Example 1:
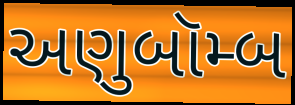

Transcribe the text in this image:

અણુબૉમ્બ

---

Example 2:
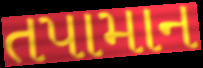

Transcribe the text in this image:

તપામાન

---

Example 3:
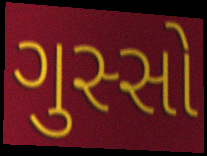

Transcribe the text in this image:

ગુસ્સો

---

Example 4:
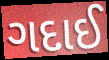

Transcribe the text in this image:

ગદાઈ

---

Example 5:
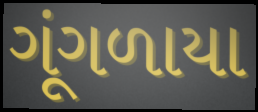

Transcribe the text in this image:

ગૂંગળાયા